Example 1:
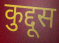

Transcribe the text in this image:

कुद्दूस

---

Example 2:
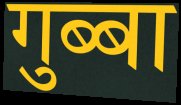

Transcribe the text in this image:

गुब्बा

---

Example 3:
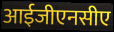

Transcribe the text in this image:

आईजीएनसीए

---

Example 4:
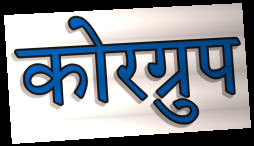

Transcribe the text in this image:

कोरग्रुप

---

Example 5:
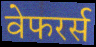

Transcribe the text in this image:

वेफरर्स